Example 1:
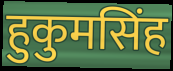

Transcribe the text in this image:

हुकुमसिंह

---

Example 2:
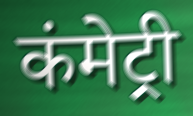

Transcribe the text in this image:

कंमेट्री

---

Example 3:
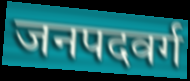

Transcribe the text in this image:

जनपदवर्ग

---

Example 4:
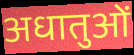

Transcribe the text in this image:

अधातुओं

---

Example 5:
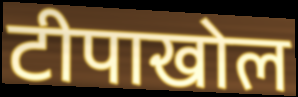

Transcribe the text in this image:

टीपाखोल